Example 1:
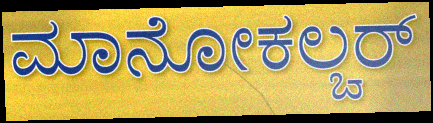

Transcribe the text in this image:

ಮಾನೋಕಲ್ಚರ್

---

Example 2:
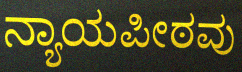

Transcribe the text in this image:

ನ್ಯಾಯಪೀಠವು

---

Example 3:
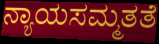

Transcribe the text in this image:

ನ್ಯಾಯಸಮ್ಮತತೆ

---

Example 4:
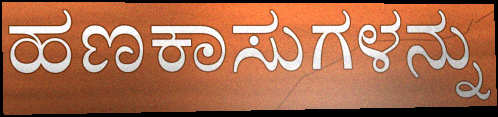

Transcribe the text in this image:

ಹಣಕಾಸುಗಳನ್ನು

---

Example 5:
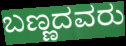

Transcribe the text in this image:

ಬಣ್ಣದವರು